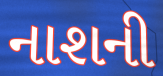
નાશની